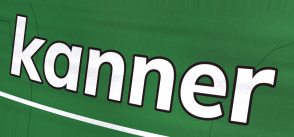
kanner